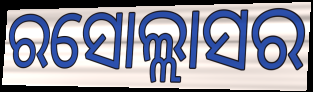
ରସୋଲ୍ଲାସର